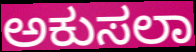
ಅಕುಸಲಾ